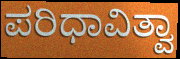
ಪರಿಧಾವಿತ್ವಾ